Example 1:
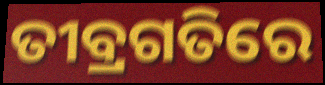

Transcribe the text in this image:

ତୀବ୍ରଗତିରେ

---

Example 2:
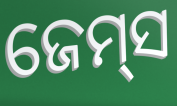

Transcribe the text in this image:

ଜେମ୍‌ସ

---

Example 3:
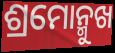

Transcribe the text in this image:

ଶ୍ରମୋନ୍ମୁଖ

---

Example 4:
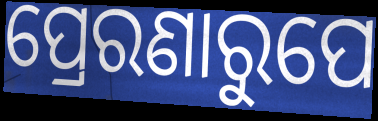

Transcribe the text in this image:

ପ୍ରେରଣାରୁପେ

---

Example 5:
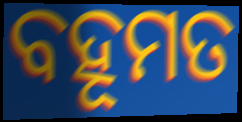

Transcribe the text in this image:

ବହୂମତ